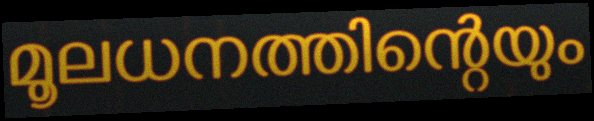
മൂലധനത്തിന്റെയും